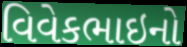
વિવેકભાઇનો